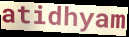
atidhyam